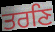
ਤਰਣਿ